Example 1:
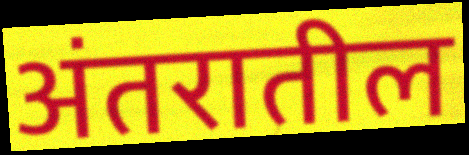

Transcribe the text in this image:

अंतरातील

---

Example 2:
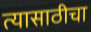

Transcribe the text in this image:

त्यासाठीचा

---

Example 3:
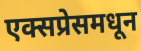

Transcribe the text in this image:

एक्सप्रेसमधून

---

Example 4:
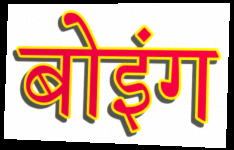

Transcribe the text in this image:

बोइंग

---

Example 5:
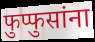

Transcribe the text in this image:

फुप्फुसांना